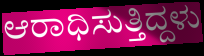
ಆರಾಧಿಸುತ್ತಿದ್ದಳು